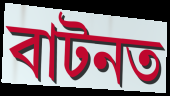
বাটনত